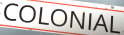
COLONIAL